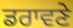
ਡਰਾਵਣੇ